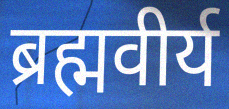
ब्रह्मवीर्य